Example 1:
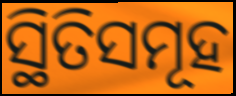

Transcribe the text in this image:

ସ୍ଥିତିସମୂହ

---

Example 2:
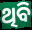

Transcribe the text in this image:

ଥିବି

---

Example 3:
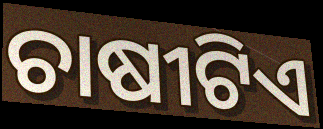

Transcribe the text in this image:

ଚାଷୀଟିଏ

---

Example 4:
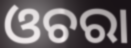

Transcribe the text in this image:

ଓଚରା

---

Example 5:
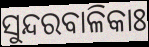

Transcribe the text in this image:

ସୁନ୍ଦରବାଳିକାଃ